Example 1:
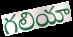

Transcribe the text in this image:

గలియా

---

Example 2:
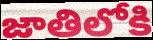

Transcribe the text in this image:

జాతిలోకి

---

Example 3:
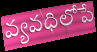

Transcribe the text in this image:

వ్యవధిలోపే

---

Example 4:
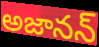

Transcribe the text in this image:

అజానన్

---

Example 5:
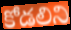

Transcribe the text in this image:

కోడలిని